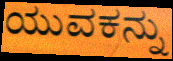
ಯುವಕನ್ನು